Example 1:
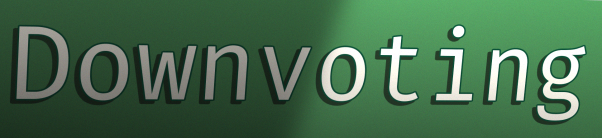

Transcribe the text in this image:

Downvoting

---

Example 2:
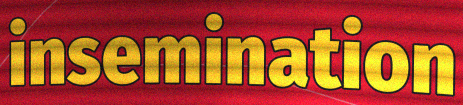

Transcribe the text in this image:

insemination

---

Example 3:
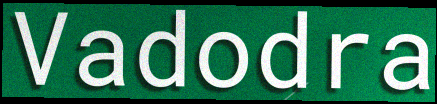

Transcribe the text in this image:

Vadodra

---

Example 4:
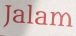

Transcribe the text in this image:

Jalam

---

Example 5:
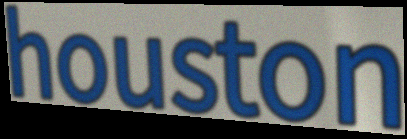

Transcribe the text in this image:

houston